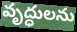
వృద్ధులను